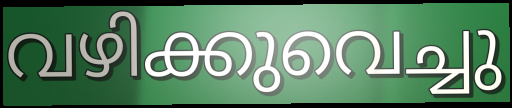
വഴിക്കുവെച്ചു